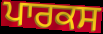
ਪਾਰਕਸ